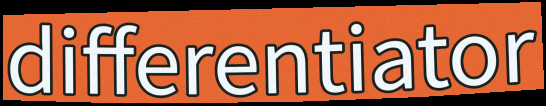
differentiator